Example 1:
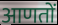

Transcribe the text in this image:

आणतों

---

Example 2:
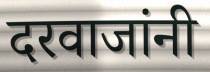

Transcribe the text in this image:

दरवाजांनी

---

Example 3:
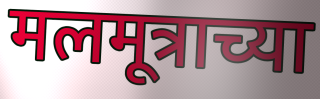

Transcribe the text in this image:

मलमूत्राच्या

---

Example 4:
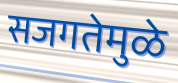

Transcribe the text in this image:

सजगतेमुळे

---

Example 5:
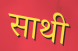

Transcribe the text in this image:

साथी